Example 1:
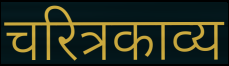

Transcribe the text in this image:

चरित्रकाव्य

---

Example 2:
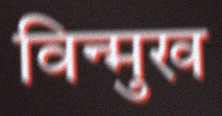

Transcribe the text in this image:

विन्मुख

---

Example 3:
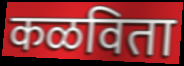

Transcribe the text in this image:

कळविता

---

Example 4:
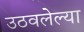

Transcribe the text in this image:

उठवलेल्या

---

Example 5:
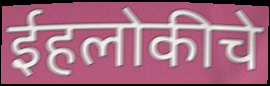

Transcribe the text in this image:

ईहलोकीचे